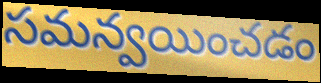
సమన్వయించడం